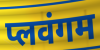
प्लवंगम